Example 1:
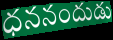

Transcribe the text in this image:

ధననందుడు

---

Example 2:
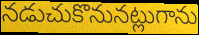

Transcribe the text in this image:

నడుచుకొనునట్లుగాను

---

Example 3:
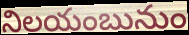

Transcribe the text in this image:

నిలయంబునుం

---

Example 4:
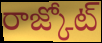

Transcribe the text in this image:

రాజ్కోట్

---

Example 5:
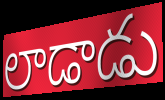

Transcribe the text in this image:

లాడాడు